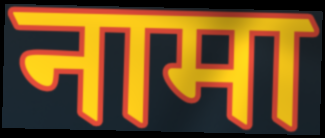
नामा